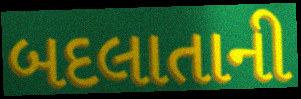
બદલાતાની